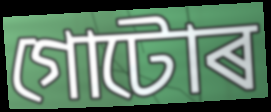
গোটোৰ